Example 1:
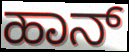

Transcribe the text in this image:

ಹಾನ್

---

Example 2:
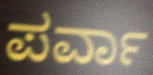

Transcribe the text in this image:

ಪರ್ವಾ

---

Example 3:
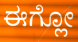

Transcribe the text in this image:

ಈಗ್ಲೋ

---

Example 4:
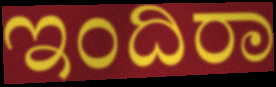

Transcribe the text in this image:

ಇಂದಿರಾ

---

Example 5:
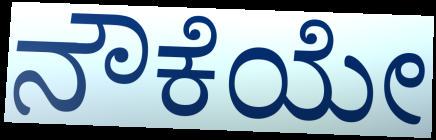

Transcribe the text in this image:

ನೌಕೆಯೇ